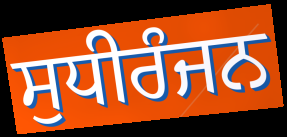
ਸੁਧੀਰੰਜਨ